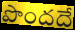
పొందదే